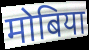
मोबिया